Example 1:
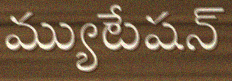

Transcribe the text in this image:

మ్యుటేషన్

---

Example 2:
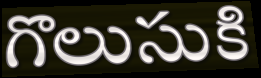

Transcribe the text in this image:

గొలుసుకి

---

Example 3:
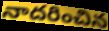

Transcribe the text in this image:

నాదరించిన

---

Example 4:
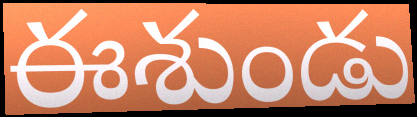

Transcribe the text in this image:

ఈశుండు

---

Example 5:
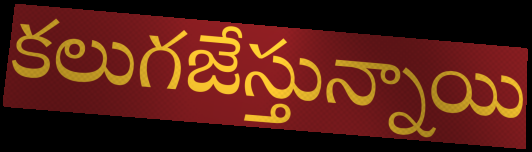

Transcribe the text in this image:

కలుగజేస్తున్నాయి